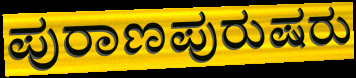
ಪುರಾಣಪುರುಷರು